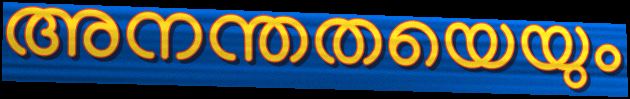
അനന്തതയെയും